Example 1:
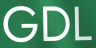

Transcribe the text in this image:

GDL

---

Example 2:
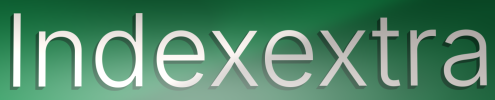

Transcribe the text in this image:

Indexextra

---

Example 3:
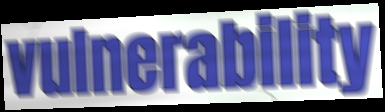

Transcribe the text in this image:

vulnerability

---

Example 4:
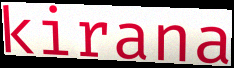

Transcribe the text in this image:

kirana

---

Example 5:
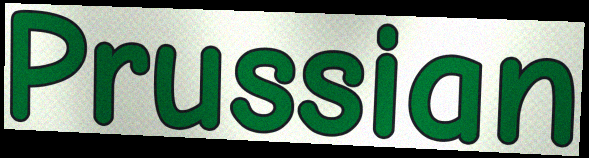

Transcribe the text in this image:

Prussian